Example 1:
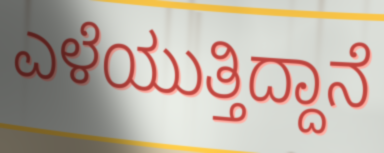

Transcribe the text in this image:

ಎಳೆಯುತ್ತಿದ್ದಾನೆ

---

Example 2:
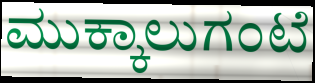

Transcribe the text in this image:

ಮುಕ್ಕಾಲುಗಂಟೆ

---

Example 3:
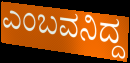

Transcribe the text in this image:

ಎಂಬವನಿದ್ದ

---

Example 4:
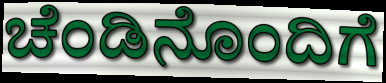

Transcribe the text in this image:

ಚೆಂಡಿನೊಂದಿಗೆ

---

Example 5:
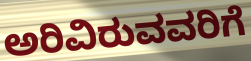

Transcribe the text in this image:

ಅರಿವಿರುವವರಿಗೆ